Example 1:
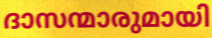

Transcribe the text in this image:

ദാസന്മാരുമായി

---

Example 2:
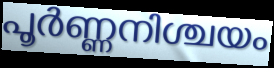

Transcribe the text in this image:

പൂർണ്ണനിശ്ചയം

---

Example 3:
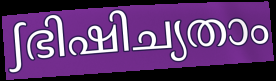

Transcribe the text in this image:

ഽഭിഷിച്യതാം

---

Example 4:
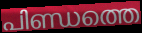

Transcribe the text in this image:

പിണ്ഡത്തെ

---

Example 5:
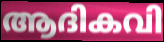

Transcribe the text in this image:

ആദികവി